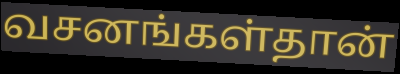
வசனங்கள்தான்